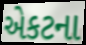
એકટના